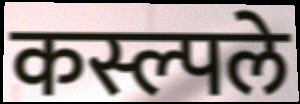
कस्ल्पले